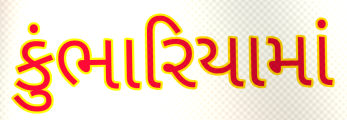
કુંભારિયામાં